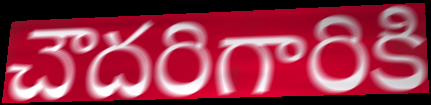
చౌదరిగారికి